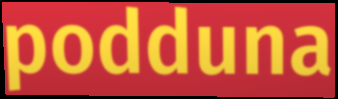
podduna